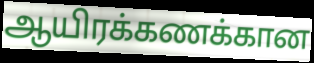
ஆயிரக்கணக்கான